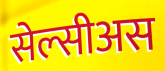
सेल्सीअस